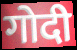
गोदी